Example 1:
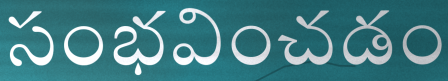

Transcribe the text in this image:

సంభవించడం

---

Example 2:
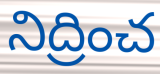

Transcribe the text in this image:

నిద్రించ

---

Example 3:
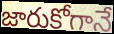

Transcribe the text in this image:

జారుకోగానే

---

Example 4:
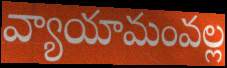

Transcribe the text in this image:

వ్యాయామంవల్ల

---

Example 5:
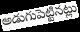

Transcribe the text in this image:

అడుగుపెట్టినట్లు